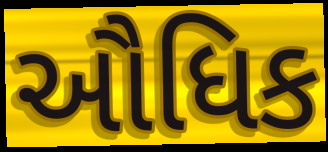
ઔધિક